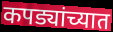
कपड्यांच्यात